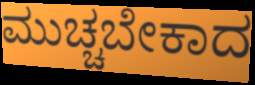
ಮುಚ್ಚಬೇಕಾದ